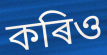
কৰিও